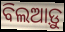
ବିଲଆଡ଼ୁ